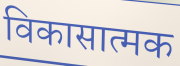
विकासात्मक